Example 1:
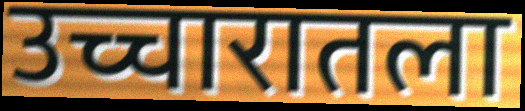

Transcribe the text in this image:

उच्चारातला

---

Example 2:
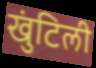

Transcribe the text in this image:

खुंटिली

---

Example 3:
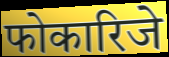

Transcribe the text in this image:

फोकारिजे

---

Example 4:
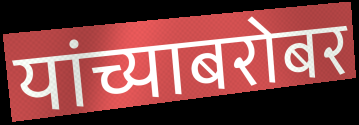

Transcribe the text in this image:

यांच्याबरोबर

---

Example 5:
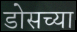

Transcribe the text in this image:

डोसच्या